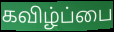
கவிழ்ப்பை